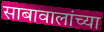
साबावालांच्या